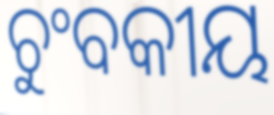
ଚୁଂବକୀୟ